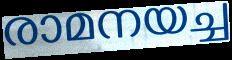
രാമനയച്ച